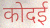
कोदई